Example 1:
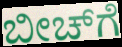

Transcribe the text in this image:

ಬೀಚ್‌ಗೆ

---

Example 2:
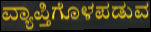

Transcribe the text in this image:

ವ್ಯಾಪ್ತಿಗೊಳಪಡುವ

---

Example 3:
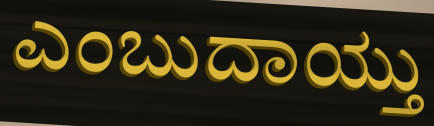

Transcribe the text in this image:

ಎಂಬುದಾಯ್ತು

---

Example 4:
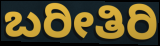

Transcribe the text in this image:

ಬರೀತಿರಿ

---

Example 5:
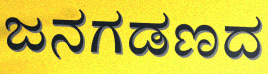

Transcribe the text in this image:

ಜನಗಡಣದ